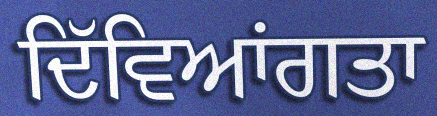
ਦਿੱਵਿਆਂਗਤਾ